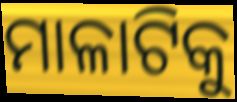
ମାଳାଟିକୁ